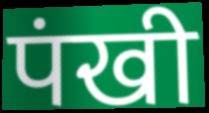
पंखी